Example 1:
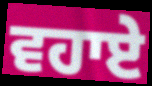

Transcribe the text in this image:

ਵਹਾਏ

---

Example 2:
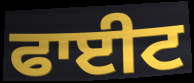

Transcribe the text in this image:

ਫਾਈਟ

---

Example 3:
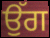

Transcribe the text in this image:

ਉੱਗ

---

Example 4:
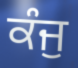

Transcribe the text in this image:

ਕੰਜੁ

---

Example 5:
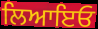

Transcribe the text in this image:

ਲਿਆਇਓ